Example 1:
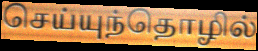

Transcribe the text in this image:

செய்யுந்தொழில்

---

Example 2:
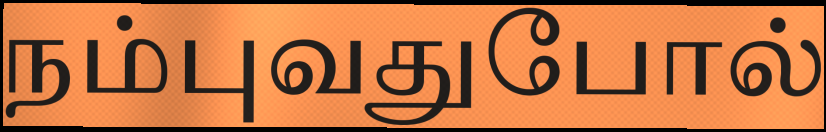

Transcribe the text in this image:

நம்புவதுபோல்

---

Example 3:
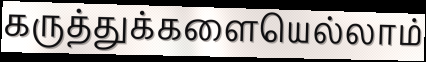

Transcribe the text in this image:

கருத்துக்களையெல்லாம்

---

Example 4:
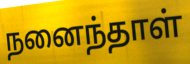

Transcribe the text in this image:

நனைந்தாள்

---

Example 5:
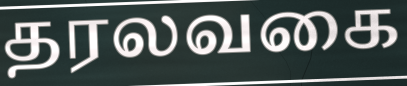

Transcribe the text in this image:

தரலவகை